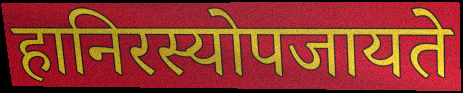
हानिरस्योपजायते